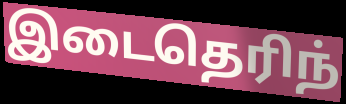
இடைதெரிந்